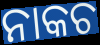
ନାକଚ